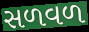
સળવળ